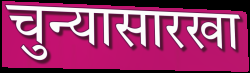
चुन्यासारखा